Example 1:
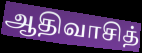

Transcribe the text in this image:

ஆதிவாசித்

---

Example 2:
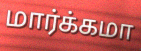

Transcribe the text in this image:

மார்க்கமா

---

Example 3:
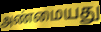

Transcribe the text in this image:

அண்மையது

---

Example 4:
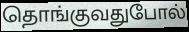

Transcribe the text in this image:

தொங்குவதுபோல்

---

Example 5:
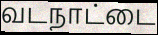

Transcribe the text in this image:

வடநாட்டை